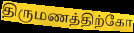
திருமணத்திற்கோ